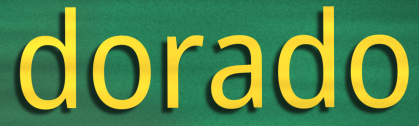
dorado